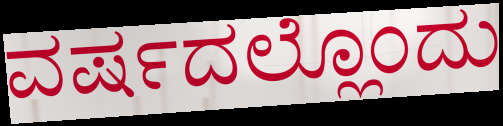
ವರ್ಷದಲ್ಲೊಂದು